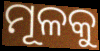
ମୂଳକୁ